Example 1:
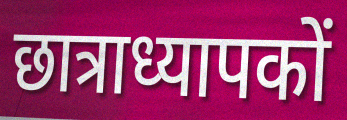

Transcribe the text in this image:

छात्राध्यापकों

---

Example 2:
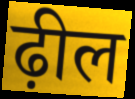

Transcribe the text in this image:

ढ़ील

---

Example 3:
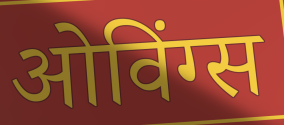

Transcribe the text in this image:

ओविंग्स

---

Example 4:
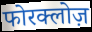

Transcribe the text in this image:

फोरक्लोज़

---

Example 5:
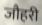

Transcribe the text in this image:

जौहरी